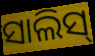
ସାଲିସ୍